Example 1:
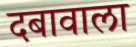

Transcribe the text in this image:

दबावाला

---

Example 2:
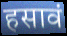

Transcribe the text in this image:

हसावं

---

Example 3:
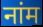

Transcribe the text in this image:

नांम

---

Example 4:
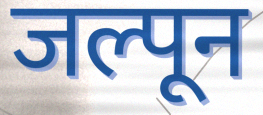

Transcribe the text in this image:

जल्पून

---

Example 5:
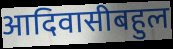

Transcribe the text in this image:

आदिवासीबहुल